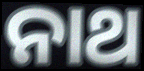
ନାଥ